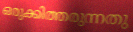
ഒരുക്കിത്തരുന്നതു